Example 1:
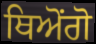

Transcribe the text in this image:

ਥਿਅੋਂਗੋ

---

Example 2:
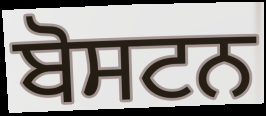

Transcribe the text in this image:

ਬੋਸਟਨ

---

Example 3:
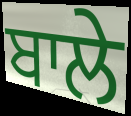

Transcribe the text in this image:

ਬਾਲੇ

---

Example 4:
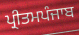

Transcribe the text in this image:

ਪ੍ਰੀਤਮਪੰਜਾਬ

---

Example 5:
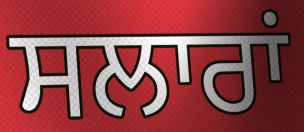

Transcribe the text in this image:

ਸਲਾਰਾਂ